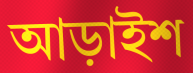
আড়াইশ